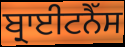
ਬ੍ਰਾਈਟਨੈੱਸ